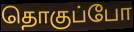
தொகுப்போ